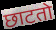
छाटतो